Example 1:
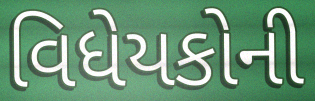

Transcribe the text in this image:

વિધેયકોની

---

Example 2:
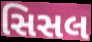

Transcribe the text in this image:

સિસલ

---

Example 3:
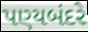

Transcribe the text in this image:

પણ્યબંદરે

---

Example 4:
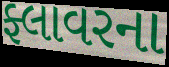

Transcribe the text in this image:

ફ્લાવરના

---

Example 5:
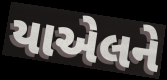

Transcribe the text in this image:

યાએલને